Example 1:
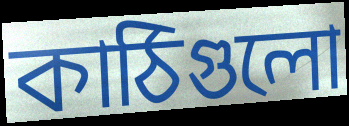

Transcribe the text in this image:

কাঠিগুলো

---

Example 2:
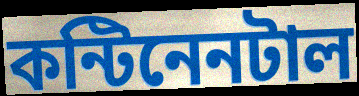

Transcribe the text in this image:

কন্টিনেনটাল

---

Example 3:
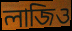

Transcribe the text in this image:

লাজিও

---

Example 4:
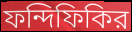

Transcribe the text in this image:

ফন্দিফিকির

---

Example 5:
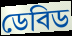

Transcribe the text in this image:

ডেবিড